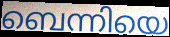
ബെന്നിയെ